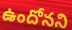
ఉందోనని